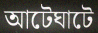
আটেঘাটে